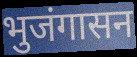
भुजंगासन